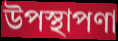
উপস্থাপণা